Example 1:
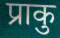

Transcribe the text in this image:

प्राकु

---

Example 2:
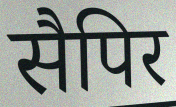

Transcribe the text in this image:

सैपिर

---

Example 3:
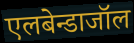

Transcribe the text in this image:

एलबेन्डाजॉल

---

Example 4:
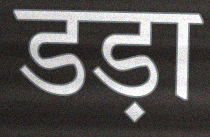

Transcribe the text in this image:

डड़ा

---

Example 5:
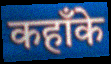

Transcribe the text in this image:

कहाँके